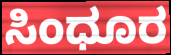
ಸಿಂಧೂರ